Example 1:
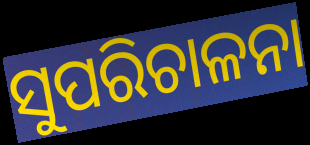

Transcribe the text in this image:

ସୁପରିଚାଳନା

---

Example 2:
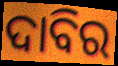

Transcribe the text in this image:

ଦାବିର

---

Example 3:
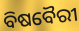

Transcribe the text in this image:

ବିଷବୈରୀ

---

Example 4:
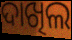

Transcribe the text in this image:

ଦାଖିଲ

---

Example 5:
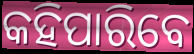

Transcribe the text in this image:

କହିପାରିବେ